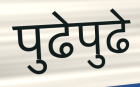
पुढेपुढे